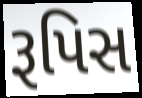
રૂપિસ